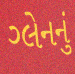
ગ્લેનનું